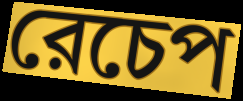
রেচেপ